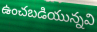
ఉంచబడియున్నవి